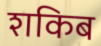
शकिब